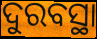
ଦୁରବସ୍ଥା